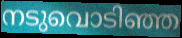
നടുവൊടിഞ്ഞ